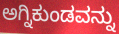
ಅಗ್ನಿಕುಂಡವನ್ನು